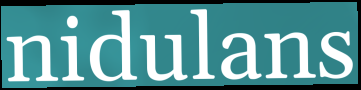
nidulans